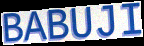
BABUJI